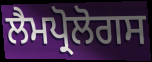
ਲੈਮਪ੍ਰੋਲੋਗਸ